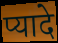
प्यादे